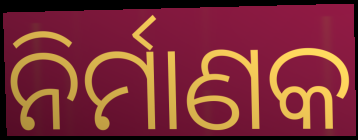
ନିର୍ମାଣକ